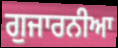
ਗੁਜਾਰਨੀਆ